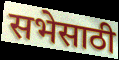
सभेसाठी